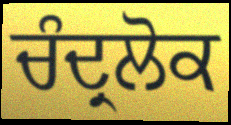
ਚੰਦ੍ਰਲੋਕ